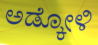
ಅಡ್ಕೋಳಿ